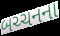
બચ્ચનના